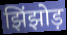
झिंझोड़